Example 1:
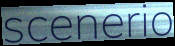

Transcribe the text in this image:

scenerio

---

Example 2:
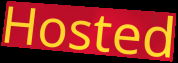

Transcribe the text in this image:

Hosted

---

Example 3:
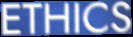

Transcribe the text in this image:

ETHICS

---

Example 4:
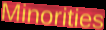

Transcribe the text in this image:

Minorities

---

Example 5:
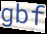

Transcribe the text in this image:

gbf